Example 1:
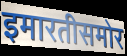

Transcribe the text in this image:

इमारतीसमोर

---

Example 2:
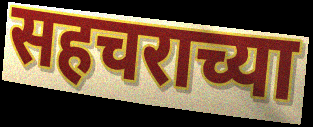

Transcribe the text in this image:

सहचराच्या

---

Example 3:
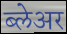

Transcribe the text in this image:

ब्लेअर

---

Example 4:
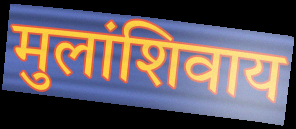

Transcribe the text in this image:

मुलांशिवाय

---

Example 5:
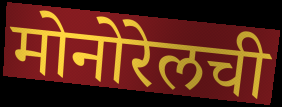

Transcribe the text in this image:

मोनोरेलची